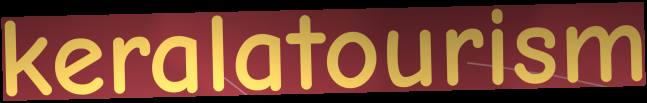
keralatourism